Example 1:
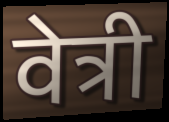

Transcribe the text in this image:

वेत्री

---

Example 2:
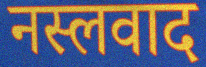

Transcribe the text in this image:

नस्लवाद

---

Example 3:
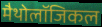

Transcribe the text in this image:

मैथोलॉजिकल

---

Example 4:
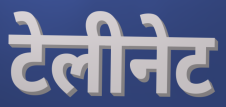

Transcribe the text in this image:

टेलीनेट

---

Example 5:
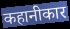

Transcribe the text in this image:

कहानीकार